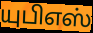
யுபிஎஸ்